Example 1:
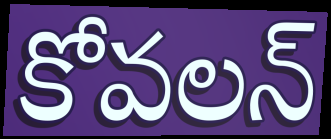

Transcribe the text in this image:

కోవలన్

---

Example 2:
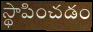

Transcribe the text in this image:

స్థాపించడం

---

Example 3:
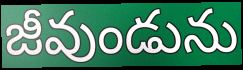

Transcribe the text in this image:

జీవుండును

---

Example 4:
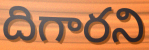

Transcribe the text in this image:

దిగారని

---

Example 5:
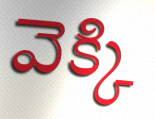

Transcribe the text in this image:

వెక్కి